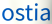
ostia